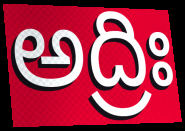
అద్రిః